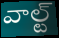
వాల్ట్